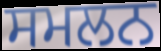
ਸਮਲਨ